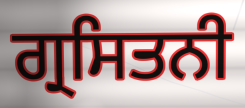
ਗ੍ਰਸਿਤਨੀ